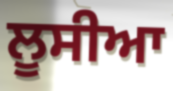
ਲੂਸੀਆ